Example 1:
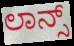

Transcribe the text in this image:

ಲಾನ್ಸ್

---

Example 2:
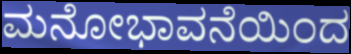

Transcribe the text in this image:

ಮನೋಭಾವನೆಯಿಂದ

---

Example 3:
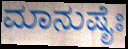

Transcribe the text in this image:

ಮಾನುಷೈಃ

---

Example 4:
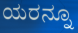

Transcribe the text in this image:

ಯರನ್ನೂ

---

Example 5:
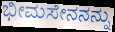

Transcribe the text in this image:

ಭೀಮಸೇನನನ್ನು